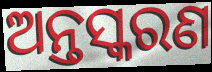
ଅନ୍ତସ୍କରଣ